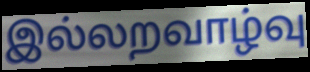
இல்லறவாழ்வு